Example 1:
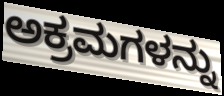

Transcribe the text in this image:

ಅಕ್ರಮಗಳನ್ನು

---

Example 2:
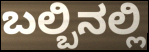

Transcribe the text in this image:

ಬಲ್ಬಿನಲ್ಲಿ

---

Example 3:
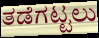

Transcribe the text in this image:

ತಡೆಗಟ್ಟಲು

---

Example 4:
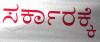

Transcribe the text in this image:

ಸರ್ಕಾರಕ್ಕೆ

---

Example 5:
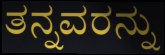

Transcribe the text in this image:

ತನ್ನವರನ್ನು